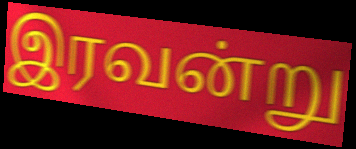
இரவன்று